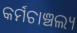
କର୍ମଚାଞ୍ଚଲ୍ୟ